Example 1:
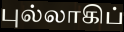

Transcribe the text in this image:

புல்லாகிப்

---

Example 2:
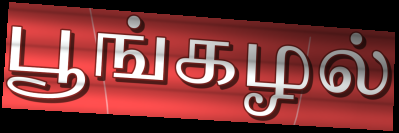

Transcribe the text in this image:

பூங்கழல்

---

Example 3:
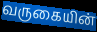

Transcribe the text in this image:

வருகையின்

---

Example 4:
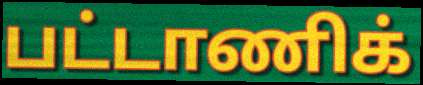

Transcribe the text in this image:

பட்டாணிக்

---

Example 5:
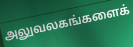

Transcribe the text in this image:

அலுவலகங்களைக்